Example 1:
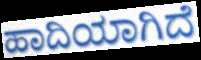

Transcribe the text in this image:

ಹಾದಿಯಾಗಿದೆ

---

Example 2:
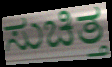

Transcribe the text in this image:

ಸುಚಿತ್ತ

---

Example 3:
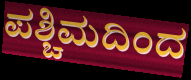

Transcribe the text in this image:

ಪಶ್ಚಿಮದಿಂದ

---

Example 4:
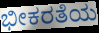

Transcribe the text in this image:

ಭೀಕರತೆಯ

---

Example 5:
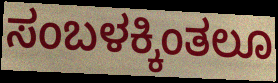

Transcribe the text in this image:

ಸಂಬಳಕ್ಕಿಂತಲೂ